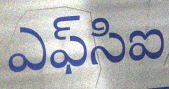
ఎఫ్‌సిఐ